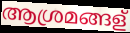
ആശ്രമങ്ങള്